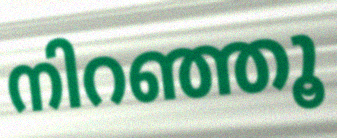
നിറഞ്ഞൂ